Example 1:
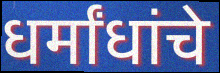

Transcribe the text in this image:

धर्मांधांचे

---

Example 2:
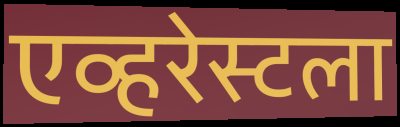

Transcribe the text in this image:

एव्हरेस्टला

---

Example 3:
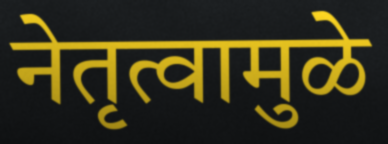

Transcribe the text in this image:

नेतृत्वामुळे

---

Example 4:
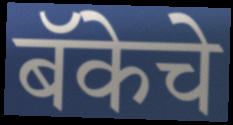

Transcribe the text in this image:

बॅकेचे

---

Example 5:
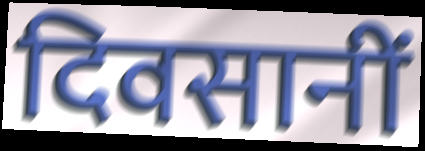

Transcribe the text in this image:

दिवसानीं